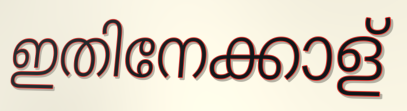
ഇതിനേക്കാള്